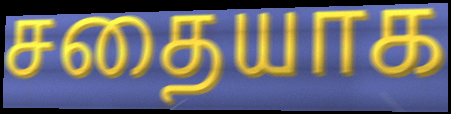
சதையாக